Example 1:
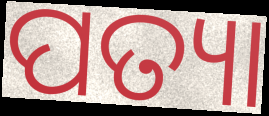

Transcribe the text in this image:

ପତ୍ୟା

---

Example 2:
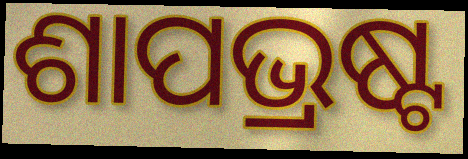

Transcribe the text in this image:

ଶାପଭ୍ରଷ୍ଟ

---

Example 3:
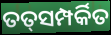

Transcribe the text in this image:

ତତ୍‌ସମ୍ପର୍କିତ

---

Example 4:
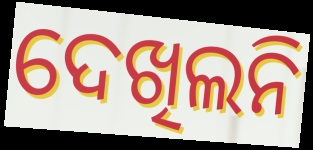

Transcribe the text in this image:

ଦେଖିଲନି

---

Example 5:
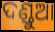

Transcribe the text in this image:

ଦଣ୍ଡୁଆ